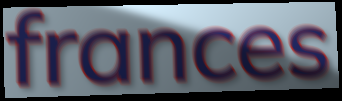
frances